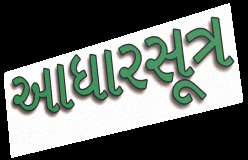
આધારસૂત્ર